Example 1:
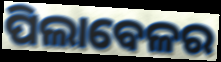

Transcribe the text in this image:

ପିଲାବେଳର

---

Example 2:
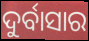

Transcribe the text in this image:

ଦୁର୍ବାସାର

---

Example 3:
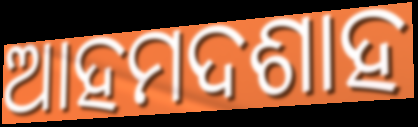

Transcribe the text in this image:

ଆହମଦଶାହ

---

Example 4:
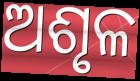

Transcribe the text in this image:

ଅଶୃଳ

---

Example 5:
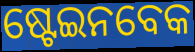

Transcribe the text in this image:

ଷ୍ଟେଇନବେକ